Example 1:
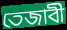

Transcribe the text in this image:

তেজাবী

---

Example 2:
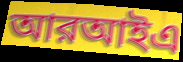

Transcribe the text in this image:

আরআইএ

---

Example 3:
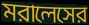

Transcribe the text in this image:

মরালেসের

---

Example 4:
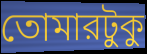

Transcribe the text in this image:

তোমারটুকু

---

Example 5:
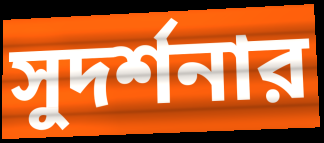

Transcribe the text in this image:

সুদর্শনার